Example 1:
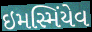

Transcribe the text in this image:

ઇમસ્મિંયેવ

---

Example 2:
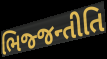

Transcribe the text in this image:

ભિજ્જન્તીતિ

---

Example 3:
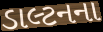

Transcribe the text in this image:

ડાલ્ટનના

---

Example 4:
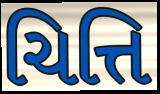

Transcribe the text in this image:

ચિત્તિ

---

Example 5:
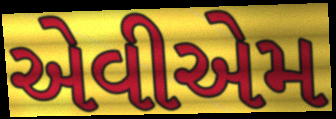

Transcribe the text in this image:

એવીએમ